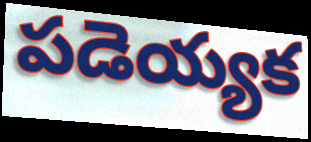
పడెయ్యక